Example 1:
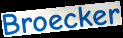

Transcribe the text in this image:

Broecker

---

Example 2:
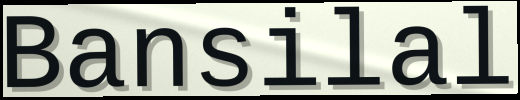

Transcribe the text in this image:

Bansilal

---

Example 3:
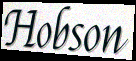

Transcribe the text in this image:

Hobson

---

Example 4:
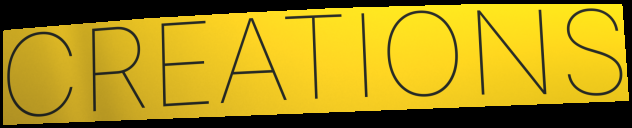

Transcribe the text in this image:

CREATIONS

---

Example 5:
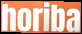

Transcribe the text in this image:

horiba